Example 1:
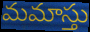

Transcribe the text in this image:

మమాస్తు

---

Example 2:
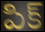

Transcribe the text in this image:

పిక్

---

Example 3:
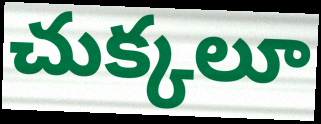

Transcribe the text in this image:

చుక్కలూ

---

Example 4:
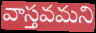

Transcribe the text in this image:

వాస్తవమని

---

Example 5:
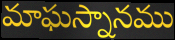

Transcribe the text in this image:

మాఘస్నానము